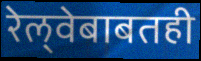
रेल्वेबाबतही